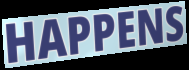
HAPPENS